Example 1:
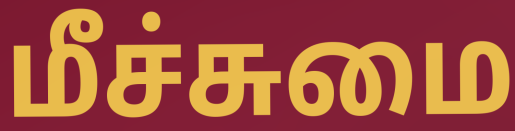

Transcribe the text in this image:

மீச்சுமை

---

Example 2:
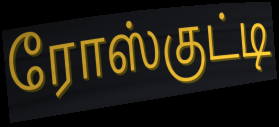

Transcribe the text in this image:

ரோஸ்குட்டி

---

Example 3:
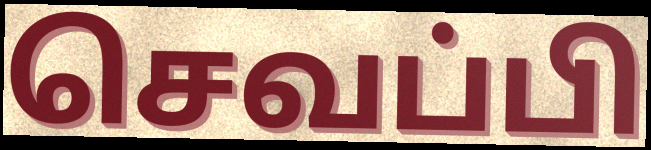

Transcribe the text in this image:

செவப்பி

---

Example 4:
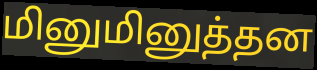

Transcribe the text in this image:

மினுமினுத்தன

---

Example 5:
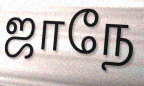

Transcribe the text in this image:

ஜாநே